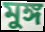
মুঙ্গ